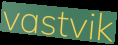
vastvik